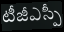
టీజీఎస్పీ